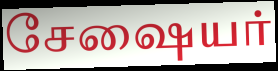
சேஷையர்